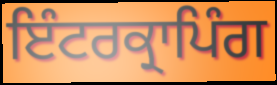
ਇੰਟਰਕ੍ਰਾਪਿੰਗ